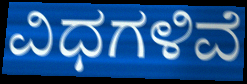
ವಿಧಗಳಿವೆ